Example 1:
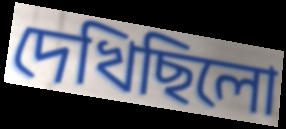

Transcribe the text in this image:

দেখিছিলো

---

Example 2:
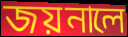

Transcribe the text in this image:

জয়নালে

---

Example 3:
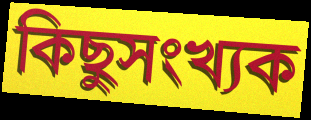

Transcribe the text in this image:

কিছুসংখ্যক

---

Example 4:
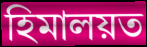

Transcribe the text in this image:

হিমালয়ত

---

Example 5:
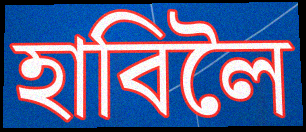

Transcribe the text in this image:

হাবিলৈ